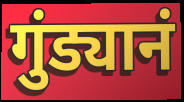
गुंड्यानं